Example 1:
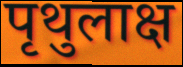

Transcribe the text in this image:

पृथुलाक्ष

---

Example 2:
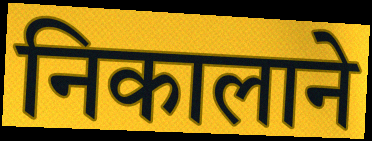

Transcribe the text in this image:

निकालाने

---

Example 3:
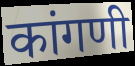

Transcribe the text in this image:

कांगणी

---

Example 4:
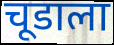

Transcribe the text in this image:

चूडाला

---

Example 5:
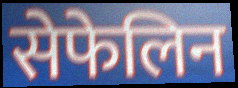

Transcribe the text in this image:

सेफेलिन